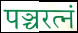
पञ्चरत्नं